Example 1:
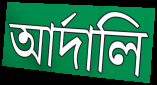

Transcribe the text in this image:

আর্দালি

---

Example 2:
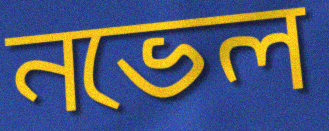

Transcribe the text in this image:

নভেল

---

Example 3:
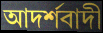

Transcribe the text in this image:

আদর্শবাদী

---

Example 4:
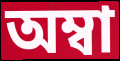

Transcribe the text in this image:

অম্বা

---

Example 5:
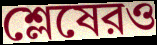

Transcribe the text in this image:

শ্লেষেরও